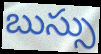
బుస్సు